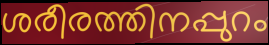
ശരീരത്തിനപ്പുറം